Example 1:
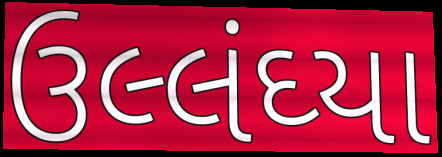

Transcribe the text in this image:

ઉલ્લંઘ્યા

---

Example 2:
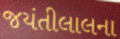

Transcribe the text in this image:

જયંતીલાલના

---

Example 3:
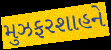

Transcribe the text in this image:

મુઝફરશાહને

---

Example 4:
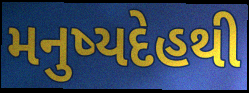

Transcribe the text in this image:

મનુષ્યદેહથી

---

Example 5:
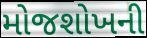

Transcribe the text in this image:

મોજશોખની